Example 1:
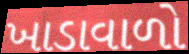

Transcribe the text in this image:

ખાડાવાળો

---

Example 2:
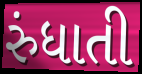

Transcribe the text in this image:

રુંધાતી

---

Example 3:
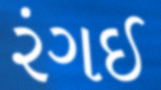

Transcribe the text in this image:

રંગઈ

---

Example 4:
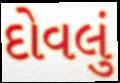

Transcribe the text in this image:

દોવલું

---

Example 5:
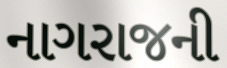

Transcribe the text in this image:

નાગરાજની